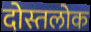
दोस्तलोक